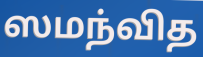
ஸமந்வித